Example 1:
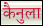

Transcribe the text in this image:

कैनुला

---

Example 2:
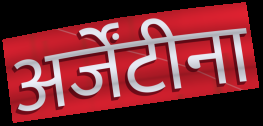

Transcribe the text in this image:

अर्जेंटीना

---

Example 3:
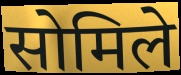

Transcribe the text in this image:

सोमिले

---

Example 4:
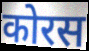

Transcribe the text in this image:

कोरस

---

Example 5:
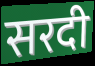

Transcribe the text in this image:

सरदी